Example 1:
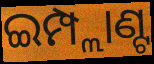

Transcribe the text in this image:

ଇମ୍ପ୍ଲାଣ୍ଟ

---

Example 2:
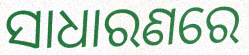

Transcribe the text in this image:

ସାଧାରଣରେ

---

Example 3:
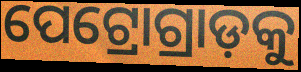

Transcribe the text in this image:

ପେଟ୍ରୋଗ୍ରାଡ଼କୁ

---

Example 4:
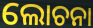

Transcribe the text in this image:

ଲୋଚନା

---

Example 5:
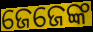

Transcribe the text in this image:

ଜେଜେଙ୍କ